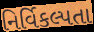
નિર્વિકલ્પતા